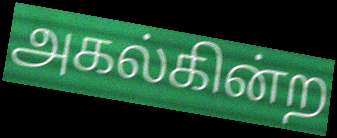
அகல்கின்ற